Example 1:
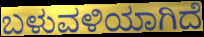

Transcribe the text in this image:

ಬಳುವಳಿಯಾಗಿದೆ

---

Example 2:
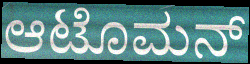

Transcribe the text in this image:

ಆಟೊಮನ್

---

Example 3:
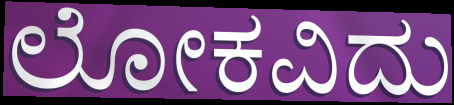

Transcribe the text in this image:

ಲೋಕವಿದು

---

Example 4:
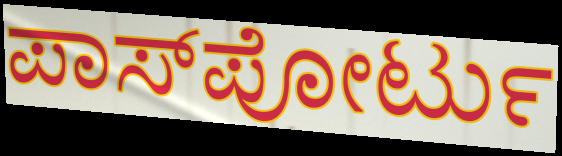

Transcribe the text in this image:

ಪಾಸ್‌ಪೋರ್ಟು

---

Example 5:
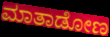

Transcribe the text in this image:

ಮಾತಾಡೋಣ